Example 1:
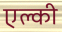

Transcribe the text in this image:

एल्की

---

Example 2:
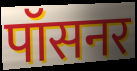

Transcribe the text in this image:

पॉसनर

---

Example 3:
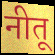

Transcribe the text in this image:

नीतू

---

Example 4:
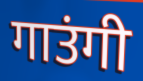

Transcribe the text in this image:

गाउंगी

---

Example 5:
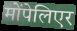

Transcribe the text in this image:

मोंपेलिएर